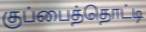
குப்பைத்தொட்டி